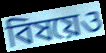
বিষয়েও